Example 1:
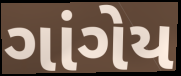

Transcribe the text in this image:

ગાંગેય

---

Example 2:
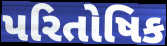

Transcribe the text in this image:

પરિતોષિક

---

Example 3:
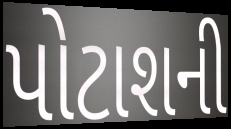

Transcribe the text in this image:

પોટાશની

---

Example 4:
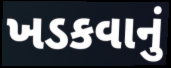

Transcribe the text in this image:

ખડકવાનું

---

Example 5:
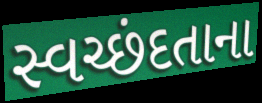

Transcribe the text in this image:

સ્વચ્છંદતાના